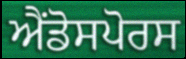
ਐਂਡੋਸਪੋਰਸ